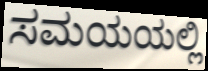
ಸಮಯಯಲ್ಲಿ